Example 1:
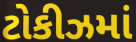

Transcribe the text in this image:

ટોકીઝમાં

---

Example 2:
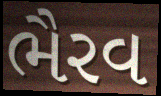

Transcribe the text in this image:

ભૈરવ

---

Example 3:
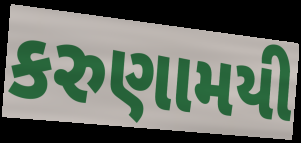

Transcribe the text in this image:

કરુણામયી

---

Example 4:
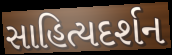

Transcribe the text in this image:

સાહિત્યદર્શન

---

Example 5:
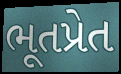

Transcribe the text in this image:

ભૂતપ્રેત